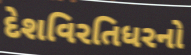
દેશવિરતિધરનો